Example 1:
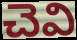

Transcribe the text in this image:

చెవి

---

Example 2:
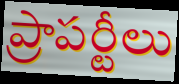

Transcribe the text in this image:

ప్రాపర్టీలు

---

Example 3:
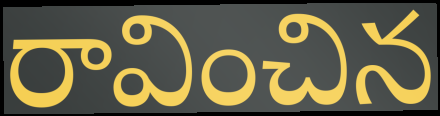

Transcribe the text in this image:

రావించిన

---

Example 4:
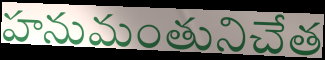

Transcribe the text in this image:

హనుమంతునిచేత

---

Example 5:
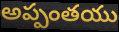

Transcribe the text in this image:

అప్పంతయు